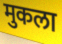
मुकला